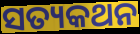
ସତ୍ୟକଥନ